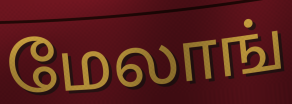
மேலாங்